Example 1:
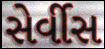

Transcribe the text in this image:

સેર્વીસ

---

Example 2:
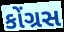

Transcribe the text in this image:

કોંગ્રસ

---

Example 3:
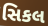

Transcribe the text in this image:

સિકલ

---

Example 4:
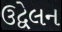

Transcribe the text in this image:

ઉદ્વેલન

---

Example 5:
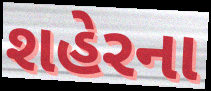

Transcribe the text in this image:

શહેરના